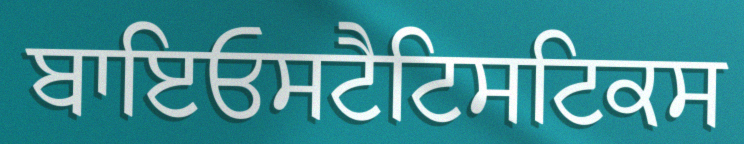
ਬਾਇਓਸਟੈਟਿਸਟਿਕਸ